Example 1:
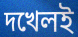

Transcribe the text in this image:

দখেলই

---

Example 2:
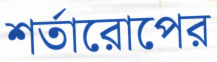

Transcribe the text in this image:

শর্তারোপের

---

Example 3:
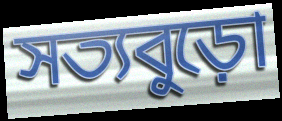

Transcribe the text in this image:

সত্যবুড়ো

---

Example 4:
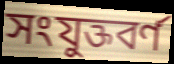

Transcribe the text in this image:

সংযুক্তবর্ণ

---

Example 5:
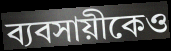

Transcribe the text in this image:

ব্যবসায়ীকেও